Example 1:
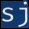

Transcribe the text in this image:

sj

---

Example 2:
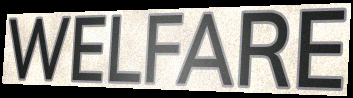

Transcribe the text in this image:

WELFARE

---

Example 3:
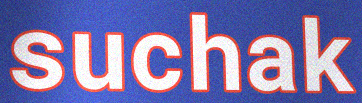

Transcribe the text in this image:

suchak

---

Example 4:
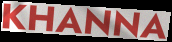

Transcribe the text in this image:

KHANNA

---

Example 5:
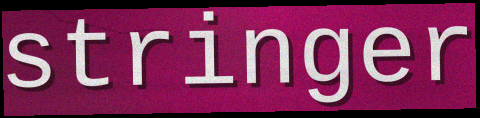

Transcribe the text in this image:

stringer